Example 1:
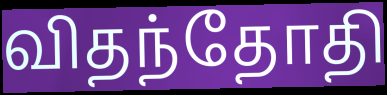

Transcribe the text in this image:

விதந்தோதி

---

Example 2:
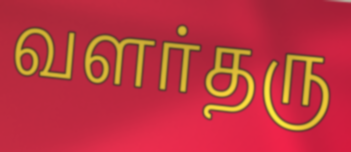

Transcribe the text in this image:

வளர்தரு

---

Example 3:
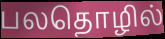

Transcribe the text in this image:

பலதொழில்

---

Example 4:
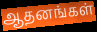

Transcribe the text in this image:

ஆதனங்கள்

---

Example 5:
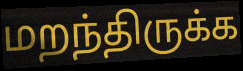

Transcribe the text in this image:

மறந்திருக்க